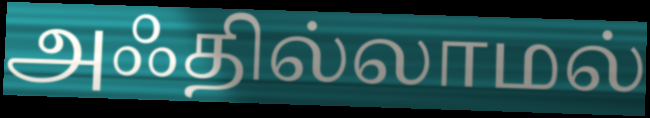
அஃதில்லாமல்